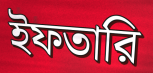
ইফতারি